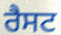
ਰੈਸਟ